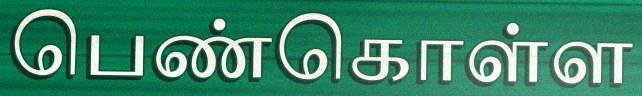
பெண்கொள்ள